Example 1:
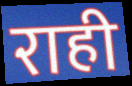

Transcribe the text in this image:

राही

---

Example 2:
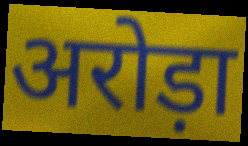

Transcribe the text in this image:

अरोड़ा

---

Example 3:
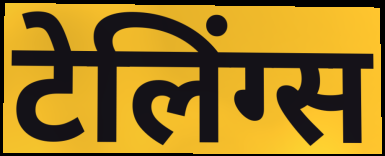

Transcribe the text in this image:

टेलिंग्स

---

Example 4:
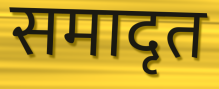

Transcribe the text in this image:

समादृत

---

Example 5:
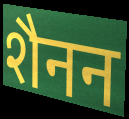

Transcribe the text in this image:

शैनन